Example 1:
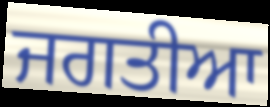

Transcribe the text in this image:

ਜਗਤੀਆ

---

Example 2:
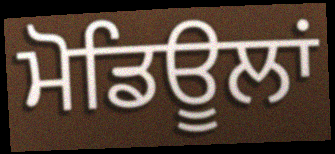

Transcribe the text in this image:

ਮੋਡਿਊਲਾਂ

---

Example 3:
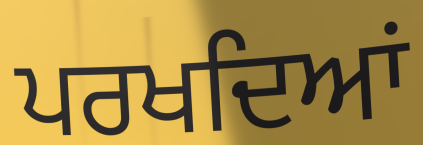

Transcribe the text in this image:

ਪਰਖਦਿਆਂ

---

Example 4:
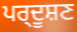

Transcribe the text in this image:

ਪਰ੍ਦੂਸ਼ਣ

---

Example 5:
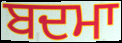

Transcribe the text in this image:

ਬਦਮਾ